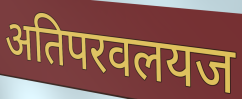
अतिपरवलयज